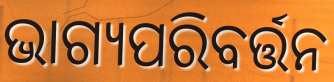
ଭାଗ୍ୟପରିବର୍ତ୍ତନ